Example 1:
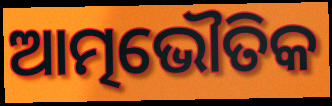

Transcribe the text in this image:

ଆତ୍ମଭୌତିକ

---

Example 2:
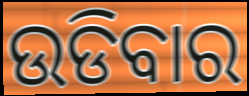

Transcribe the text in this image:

ଉଡିବାର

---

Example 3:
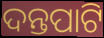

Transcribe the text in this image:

ଦନ୍ତପାଟି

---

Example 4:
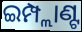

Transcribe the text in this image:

ଇମ୍ପ୍ଲାଣ୍ଟ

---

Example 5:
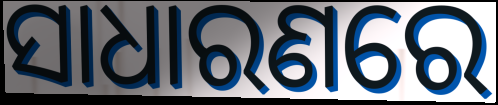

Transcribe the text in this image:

ସାଧାରଣରେ